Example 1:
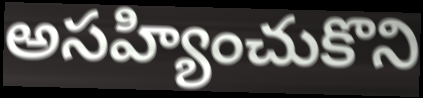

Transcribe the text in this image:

అసహ్యించుకొని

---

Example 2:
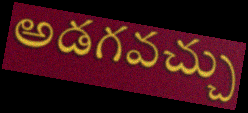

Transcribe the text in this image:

అడగవచ్చు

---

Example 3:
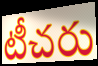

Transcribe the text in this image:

టీచరు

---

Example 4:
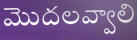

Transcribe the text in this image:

మొదలవ్వాలి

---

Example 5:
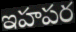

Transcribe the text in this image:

ఇహపర